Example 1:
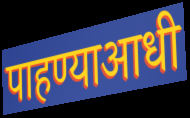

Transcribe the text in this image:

पाहण्याआधी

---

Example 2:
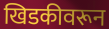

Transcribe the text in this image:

खिडकीवरून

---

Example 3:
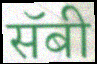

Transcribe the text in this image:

सॅबी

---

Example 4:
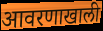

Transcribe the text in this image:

आवरणाखाली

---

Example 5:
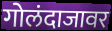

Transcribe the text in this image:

गोलंदाजावर